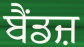
ਬੈਂਡਜ਼